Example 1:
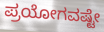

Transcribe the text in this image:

ಪ್ರಯೋಗವಷ್ಟೇ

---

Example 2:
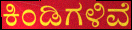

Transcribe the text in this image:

ಕಿಂಡಿಗಳಿವೆ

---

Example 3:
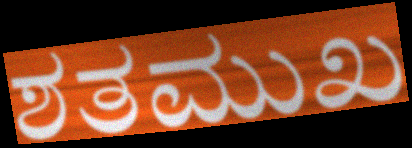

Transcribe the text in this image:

ಶತಮುಖ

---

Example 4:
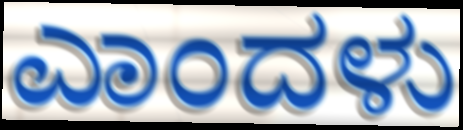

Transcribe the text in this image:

ಎಾಂದಳು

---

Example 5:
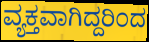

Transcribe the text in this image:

ವ್ಯಕ್ತವಾಗಿದ್ದರಿಂದ